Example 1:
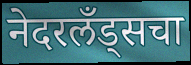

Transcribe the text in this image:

नेदरलँड्सचा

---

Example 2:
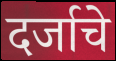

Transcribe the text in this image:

दर्जाचे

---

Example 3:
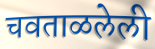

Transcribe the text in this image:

चवताळलेली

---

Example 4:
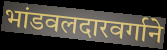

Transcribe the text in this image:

भांडवलदारवर्गाने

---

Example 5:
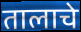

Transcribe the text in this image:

तालाचे